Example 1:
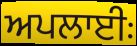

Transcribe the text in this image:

ਅਪਲਾਈਃ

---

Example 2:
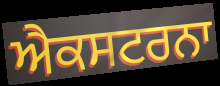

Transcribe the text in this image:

ਐਕਸਟਰਨਾ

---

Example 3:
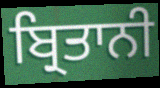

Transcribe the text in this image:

ਬ੍ਰਿਤਾਨੀ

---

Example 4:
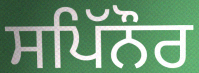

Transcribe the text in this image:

ਸਪਿੱਨੌਰ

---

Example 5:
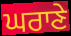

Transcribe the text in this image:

ਘਰਾਣੇ